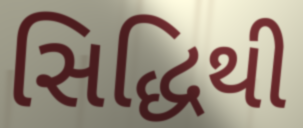
સિદ્ધિથી